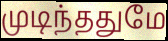
முடிந்ததுமே